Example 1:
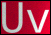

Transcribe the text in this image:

Uv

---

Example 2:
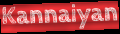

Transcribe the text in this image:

Kannaiyan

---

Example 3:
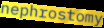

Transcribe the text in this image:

nephrostomy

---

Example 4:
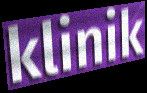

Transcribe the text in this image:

klinik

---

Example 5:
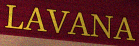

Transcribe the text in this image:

LAVANA